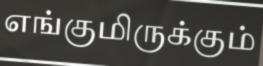
எங்குமிருக்கும்